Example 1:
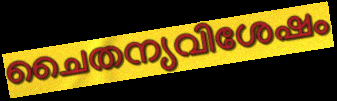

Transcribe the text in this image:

ചൈതന്യവിശേഷം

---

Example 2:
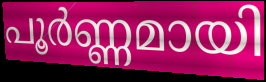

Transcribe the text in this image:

പൂർണ്ണമായി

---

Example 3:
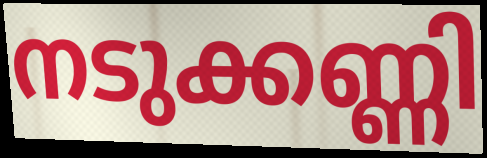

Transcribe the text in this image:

നടുക്കണ്ണി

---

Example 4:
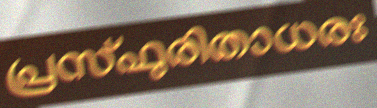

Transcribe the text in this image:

പ്രസ്ഫുരിതാധരഃ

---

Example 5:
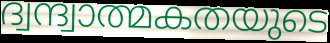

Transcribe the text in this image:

ദ്വന്ദ്വാത്മകതയുടെ